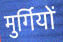
मुर्गियों